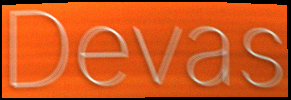
Devas